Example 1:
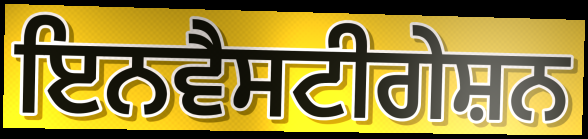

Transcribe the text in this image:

ਇਨਵੈਸਟੀਗੇਸ਼ਨ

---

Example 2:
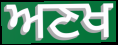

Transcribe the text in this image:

ਅਣਖ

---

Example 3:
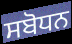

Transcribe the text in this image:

ਸਬੋਧਨ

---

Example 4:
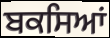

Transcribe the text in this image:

ਬਕਸਿਆਂ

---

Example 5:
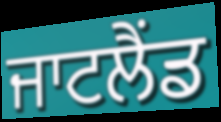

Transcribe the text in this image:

ਜਾਟਲੈਂਡ